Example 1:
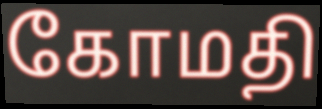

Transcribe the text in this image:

கோமதி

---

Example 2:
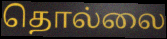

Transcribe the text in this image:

தொல்லை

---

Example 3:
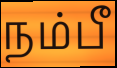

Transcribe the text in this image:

நம்பீ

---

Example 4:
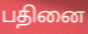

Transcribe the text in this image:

பதினை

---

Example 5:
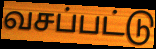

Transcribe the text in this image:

வசப்பட்டு